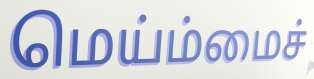
மெய்ம்மைச்